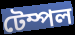
টেম্পল